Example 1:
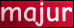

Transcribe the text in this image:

majur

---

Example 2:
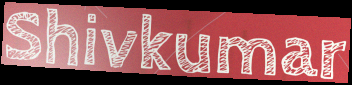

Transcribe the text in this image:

Shivkumar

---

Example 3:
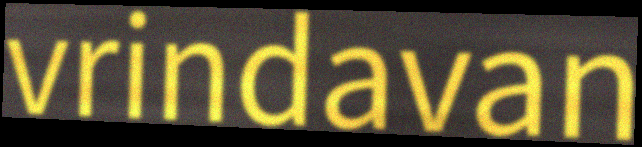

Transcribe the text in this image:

vrindavan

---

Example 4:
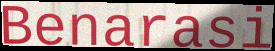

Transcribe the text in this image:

Benarasi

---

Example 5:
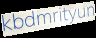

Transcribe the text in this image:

kbdmrityun